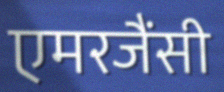
एमरजैंसी